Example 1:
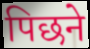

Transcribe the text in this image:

पिछने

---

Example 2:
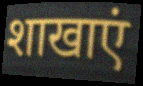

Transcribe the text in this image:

शाखाएं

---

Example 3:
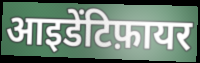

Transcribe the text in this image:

आइडेंटिफ़ायर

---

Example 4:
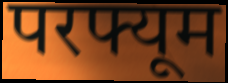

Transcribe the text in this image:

परफ्यूम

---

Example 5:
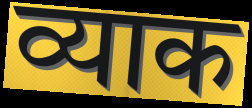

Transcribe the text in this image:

व्याक